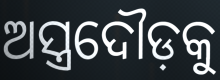
ଅସ୍ତ୍ରଦୌଡ଼କୁ